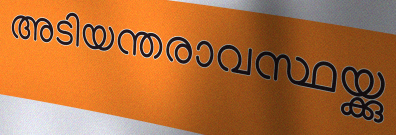
അടിയന്തരാവസ്ഥയ്ക്കു